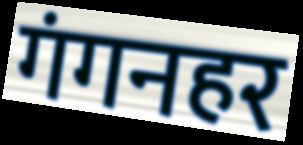
गंगनहर